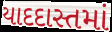
યાદદાસ્તમાં